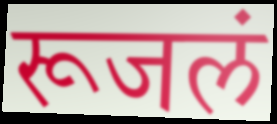
रूजलं